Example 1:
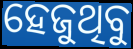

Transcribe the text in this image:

ହେଜୁଥିବୁ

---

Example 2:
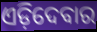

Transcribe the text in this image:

ଏଡ଼ିଦେବାର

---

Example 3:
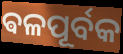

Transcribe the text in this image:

ଵଳପୂର୍ବକ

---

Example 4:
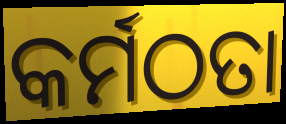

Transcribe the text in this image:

କର୍ମଠତା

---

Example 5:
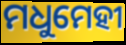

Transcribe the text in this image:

ମଧୁମେହୀ